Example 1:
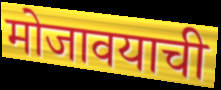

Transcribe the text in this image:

मोजावयाची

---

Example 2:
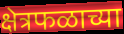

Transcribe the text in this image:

क्षेत्रफळाच्या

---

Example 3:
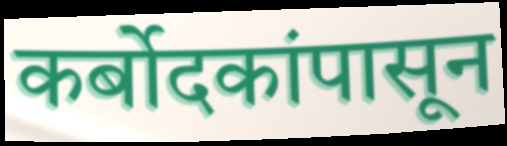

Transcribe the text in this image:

कर्बोदकांपासून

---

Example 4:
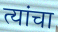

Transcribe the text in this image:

त्‍यांचा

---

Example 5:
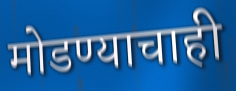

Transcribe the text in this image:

मोडण्याचाही